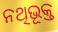
ନଥିଭୂକ୍ତ